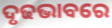
ଦୃଢଭାବରେ